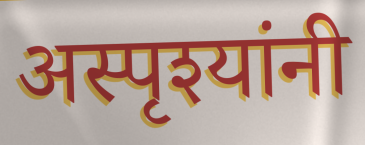
अस्पृश्यांनी